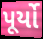
પૂર્યો